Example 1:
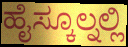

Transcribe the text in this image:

ಹೈಸ್ಕೂಲ್ನಲ್ಲಿ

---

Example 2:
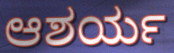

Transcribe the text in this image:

ಆಶರ್ಯ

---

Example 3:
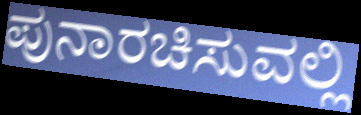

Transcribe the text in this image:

ಪುನಾರಚಿಸುವಲ್ಲಿ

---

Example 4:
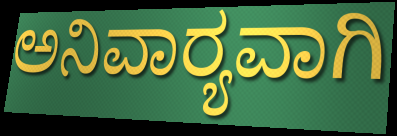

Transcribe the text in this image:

ಅನಿವಾರ‍್ಯವಾಗಿ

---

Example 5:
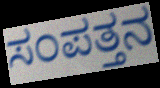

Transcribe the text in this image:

ಸಂಪತ್ತನ